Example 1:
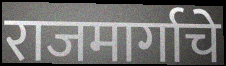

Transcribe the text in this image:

राजमार्गाचे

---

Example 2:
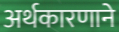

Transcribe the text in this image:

अर्थकारणाने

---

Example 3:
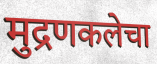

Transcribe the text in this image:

मुद्रणकलेचा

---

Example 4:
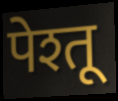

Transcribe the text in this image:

पेश्तू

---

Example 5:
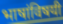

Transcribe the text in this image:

भाषांविषयी